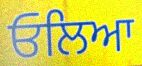
ਓਲਿਆ